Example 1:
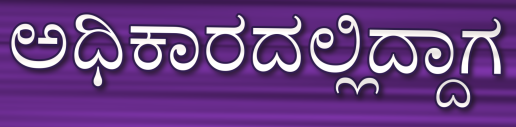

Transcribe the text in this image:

ಅಧಿಕಾರದಲ್ಲಿದ್ದಾಗ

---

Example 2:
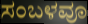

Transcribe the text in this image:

ಸಂಬಳವೂ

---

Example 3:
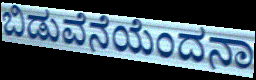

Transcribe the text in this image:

ಬಿಡುವೆನೆಯೆಂದನಾ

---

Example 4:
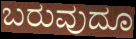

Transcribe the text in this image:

ಬರುವುದೂ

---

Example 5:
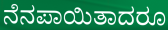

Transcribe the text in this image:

ನೆನಪಾಯಿತಾದರೂ